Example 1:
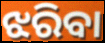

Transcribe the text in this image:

ଝରିବା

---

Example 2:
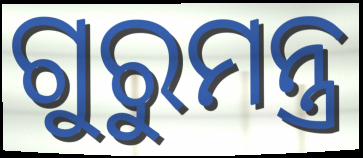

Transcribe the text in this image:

ଗୁରୁମନ୍ତ୍ର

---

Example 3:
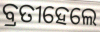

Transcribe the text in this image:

ବ୍ରତୀହେଲେ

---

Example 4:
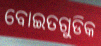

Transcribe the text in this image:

ବୋଇତଗୁଡିକ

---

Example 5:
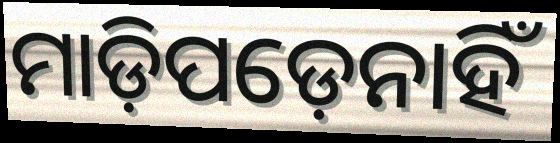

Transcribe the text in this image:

ମାଡ଼ିପଡ଼େନାହିଁ